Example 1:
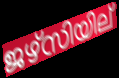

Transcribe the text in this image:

ജഴ്സിയില്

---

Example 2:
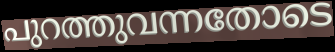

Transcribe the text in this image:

പുറത്തുവന്നതോടെ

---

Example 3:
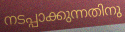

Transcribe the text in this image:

നടപ്പാക്കുന്നതിനു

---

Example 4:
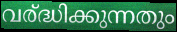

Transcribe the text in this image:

വര്ദ്ധിക്കുന്നതും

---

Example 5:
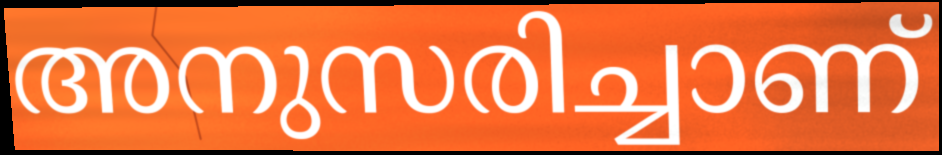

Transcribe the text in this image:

അനുസരിച്ചാണ്